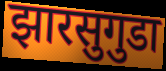
झारसुगुडा